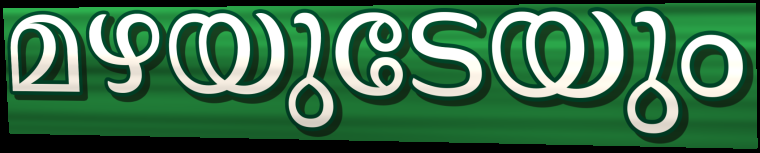
മഴയുടേയും